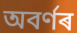
অবৰ্ণৰ